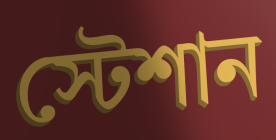
স্টেশান